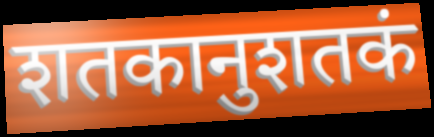
शतकानुशतकं